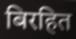
बिरहित